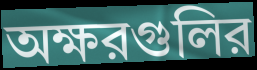
অক্ষরগুলির